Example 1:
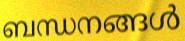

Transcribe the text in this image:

ബന്ധനങ്ങൾ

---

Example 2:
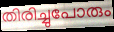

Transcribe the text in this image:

തിരിച്ചുപോരും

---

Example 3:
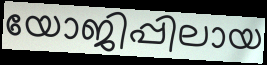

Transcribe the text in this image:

യോജിപ്പിലായ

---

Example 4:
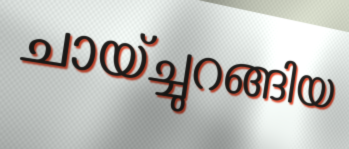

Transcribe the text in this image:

ചായ്ച്ചുറങ്ങിയ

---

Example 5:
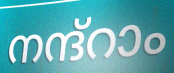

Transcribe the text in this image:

നന്ദ്റാം